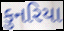
કુનરિયા